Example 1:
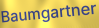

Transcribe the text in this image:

Baumgartner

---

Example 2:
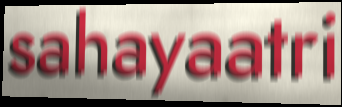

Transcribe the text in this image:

sahayaatri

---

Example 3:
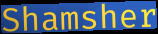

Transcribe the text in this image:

Shamsher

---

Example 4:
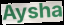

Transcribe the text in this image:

Aysha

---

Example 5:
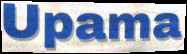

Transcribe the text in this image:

Upama